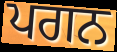
ਪਗਨ